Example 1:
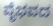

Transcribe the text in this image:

ವೈಭವದ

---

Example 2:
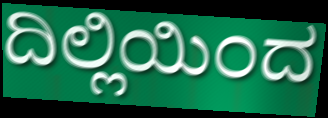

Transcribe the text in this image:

ದಿಲ್ಲಿಯಿಂದ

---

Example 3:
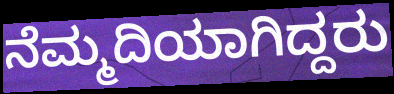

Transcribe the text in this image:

ನೆಮ್ಮದಿಯಾಗಿದ್ದರು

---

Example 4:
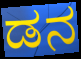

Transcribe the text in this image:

ಡನ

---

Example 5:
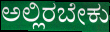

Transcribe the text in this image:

ಅಲ್ಲಿರಬೇಕು